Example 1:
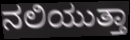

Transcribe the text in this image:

ನಲಿಯುತ್ತಾ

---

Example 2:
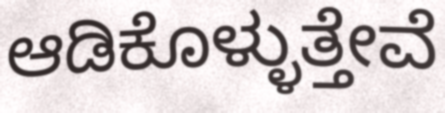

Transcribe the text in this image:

ಆಡಿಕೊಳ್ಳುತ್ತೇವೆ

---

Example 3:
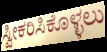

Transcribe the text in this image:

ಸ್ವೀಕರಿಸಿಕೊಳ್ಳಲು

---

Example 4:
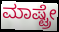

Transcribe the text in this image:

ಮಾಷ್ಟ್ರೇ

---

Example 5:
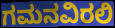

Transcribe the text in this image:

ಗಮನವಿರಲಿ